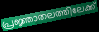
പ്രജ്ഞാതലത്തിലേക്ക്